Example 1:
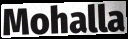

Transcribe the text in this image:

Mohalla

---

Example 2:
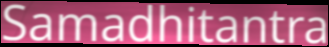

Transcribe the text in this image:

Samadhitantra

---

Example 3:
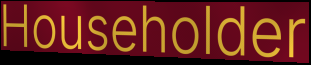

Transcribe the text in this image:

Householder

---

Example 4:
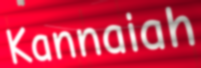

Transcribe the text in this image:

Kannaiah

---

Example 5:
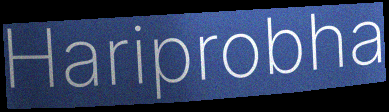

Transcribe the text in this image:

Hariprobha